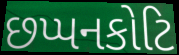
છપ્પનકોટિ